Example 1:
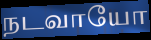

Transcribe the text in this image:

நடவாயோ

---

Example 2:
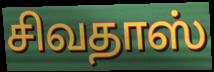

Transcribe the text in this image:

சிவதாஸ்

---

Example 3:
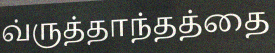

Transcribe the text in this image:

வ்ருத்தாந்தத்தை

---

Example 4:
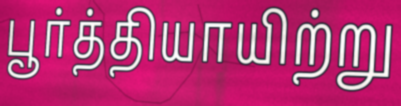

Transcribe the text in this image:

பூர்த்தியாயிற்று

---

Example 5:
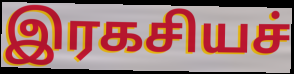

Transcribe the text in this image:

இரகசியச்